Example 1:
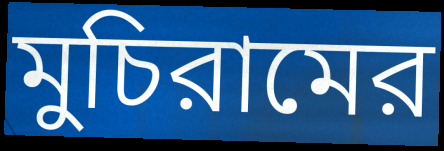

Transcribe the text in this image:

মুচিরামের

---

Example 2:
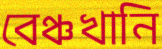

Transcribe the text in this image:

বেঞ্চখানি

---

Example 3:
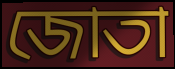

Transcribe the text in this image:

জোতা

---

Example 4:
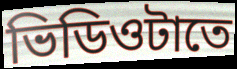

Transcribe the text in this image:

ভিডিওটাতে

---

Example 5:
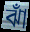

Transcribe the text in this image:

ঝাঁ